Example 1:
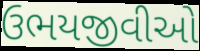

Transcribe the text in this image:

ઉભયજીવીઓ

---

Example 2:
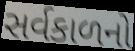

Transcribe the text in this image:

સર્વકાળનો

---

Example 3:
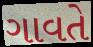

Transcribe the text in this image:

ગાવતે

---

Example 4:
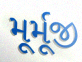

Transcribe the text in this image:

મૂર્મૂજી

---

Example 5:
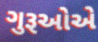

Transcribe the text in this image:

ગુરૂઓએ